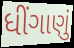
ધીંગાણું